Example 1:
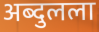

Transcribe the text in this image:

अब्दुलला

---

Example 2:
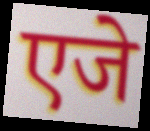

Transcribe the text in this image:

एजे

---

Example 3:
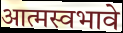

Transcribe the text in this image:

आत्मस्वभावे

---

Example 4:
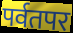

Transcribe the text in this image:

पर्वतपर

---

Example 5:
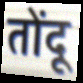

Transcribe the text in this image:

तोंदू